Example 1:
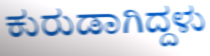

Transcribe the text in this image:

ಕುರುಡಾಗಿದ್ದಳು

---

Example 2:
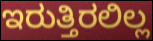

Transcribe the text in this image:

ಇರುತ್ತಿರಲಿಲ್ಲ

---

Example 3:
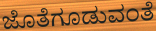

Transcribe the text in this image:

ಜೊತೆಗೂಡುವಂತೆ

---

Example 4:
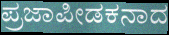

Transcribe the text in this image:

ಪ್ರಜಾಪೀಡಕನಾದ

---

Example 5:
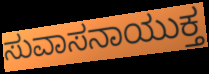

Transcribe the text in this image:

ಸುವಾಸನಾಯುಕ್ತ